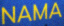
NAMA